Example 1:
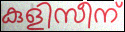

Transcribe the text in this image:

കുളിസീന്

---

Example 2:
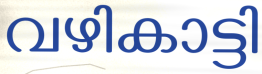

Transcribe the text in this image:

വഴികാട്ടി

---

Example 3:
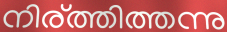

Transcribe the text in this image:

നിര്ത്തിത്തന്നു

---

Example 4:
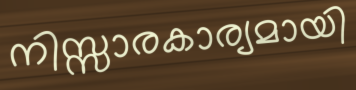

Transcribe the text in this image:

നിസ്സാരകാര്യമായി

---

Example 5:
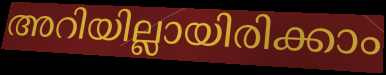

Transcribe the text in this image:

അറിയില്ലായിരിക്കാം